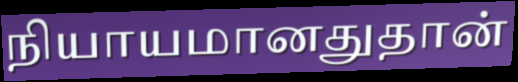
நியாயமானதுதான்